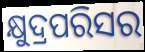
କ୍ଷୁଦ୍ରପରିସର